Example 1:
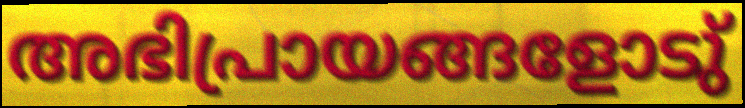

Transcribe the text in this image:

അഭിപ്രായങ്ങളോടു്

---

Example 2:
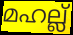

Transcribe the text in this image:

മഹല്ല്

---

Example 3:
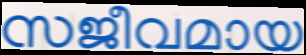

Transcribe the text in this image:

സജീവമായ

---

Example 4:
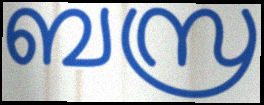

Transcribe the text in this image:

ബസ്ര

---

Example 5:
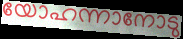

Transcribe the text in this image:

യോഹന്നാനോടു